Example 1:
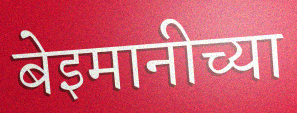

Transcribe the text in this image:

बेइमानीच्या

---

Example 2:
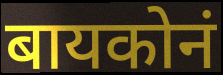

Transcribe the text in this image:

बायकोनं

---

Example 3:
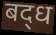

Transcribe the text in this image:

बद्ध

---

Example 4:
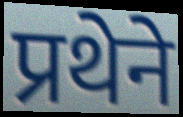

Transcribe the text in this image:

प्रथेने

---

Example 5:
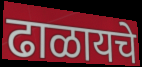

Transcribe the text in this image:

ढाळायचे